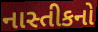
નાસ્તીકનો